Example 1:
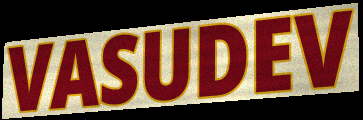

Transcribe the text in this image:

VASUDEV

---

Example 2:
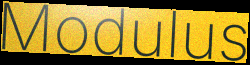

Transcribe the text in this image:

Modulus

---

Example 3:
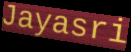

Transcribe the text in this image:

Jayasri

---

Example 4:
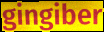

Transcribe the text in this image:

gingiber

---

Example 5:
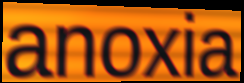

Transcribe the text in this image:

anoxia